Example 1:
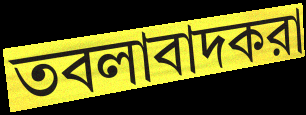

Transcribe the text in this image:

তবলাবাদকরা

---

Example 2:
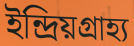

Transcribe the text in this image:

ইন্দ্রিয়গ্রাহ্য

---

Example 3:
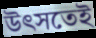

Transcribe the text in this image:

উৎসতেই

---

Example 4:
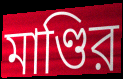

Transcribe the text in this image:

মাণ্ডির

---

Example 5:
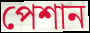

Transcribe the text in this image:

পেশান